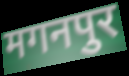
मगनपुर